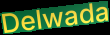
Delwada